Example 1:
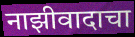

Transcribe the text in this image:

नाझीवादाचा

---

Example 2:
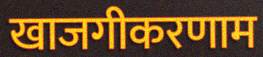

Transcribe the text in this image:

खाजगीकरणाम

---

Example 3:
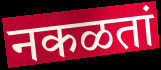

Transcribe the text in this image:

नकळतां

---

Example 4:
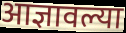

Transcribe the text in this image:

आज्ञावल्या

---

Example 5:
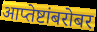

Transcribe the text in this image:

आप्तेष्टांबरोबर